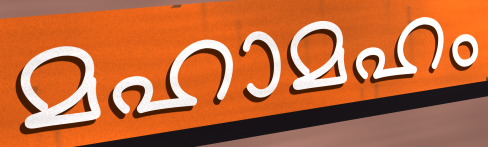
മഹാമഹം